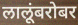
लालूंबरोबर